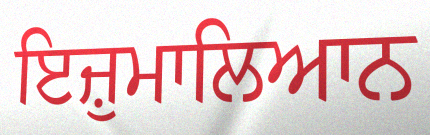
ਇਜ਼ੁਮਾਲਿਆਨ